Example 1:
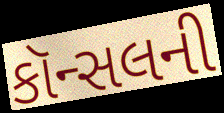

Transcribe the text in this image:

કૉન્સલની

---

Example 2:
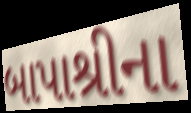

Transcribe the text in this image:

બાપાશ્રીના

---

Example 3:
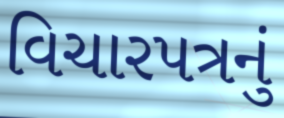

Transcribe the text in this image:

વિચારપત્રનું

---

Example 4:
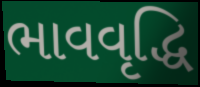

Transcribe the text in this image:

ભાવવૃદ્ધિ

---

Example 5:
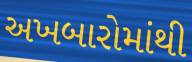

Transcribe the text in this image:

અખબારોમાંથી